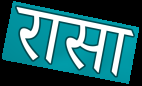
रासा